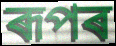
ৰূপৰ